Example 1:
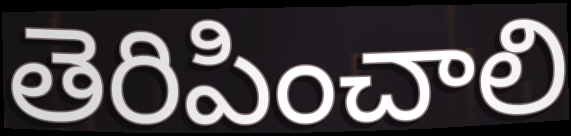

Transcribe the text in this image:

తెరిపించాలి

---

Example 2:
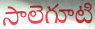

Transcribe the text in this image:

సాలెగూటి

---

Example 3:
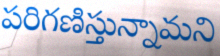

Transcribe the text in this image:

పరిగణిస్తున్నామని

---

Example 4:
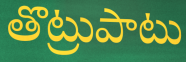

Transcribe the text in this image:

తొట్రుపాటు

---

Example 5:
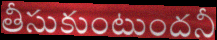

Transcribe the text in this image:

తీసుకుంటుందనీ